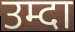
उम्‍दा